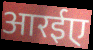
आरईए